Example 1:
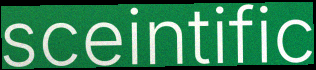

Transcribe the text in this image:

sceintific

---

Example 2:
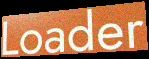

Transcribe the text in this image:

Loader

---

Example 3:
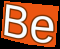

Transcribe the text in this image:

Be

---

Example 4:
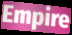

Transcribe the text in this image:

Empire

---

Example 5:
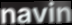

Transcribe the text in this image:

navin